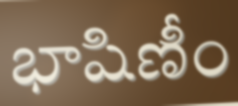
భాషిణీం